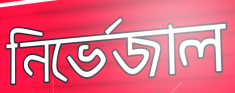
নিৰ্ভেজাল